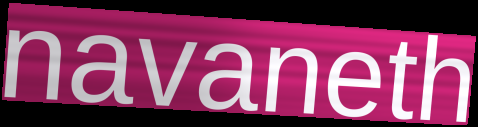
navaneth